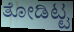
ತೋಡಿಟ್ಟ